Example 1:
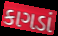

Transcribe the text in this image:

કાગડાં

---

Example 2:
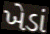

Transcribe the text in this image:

ખેડાં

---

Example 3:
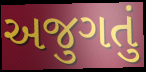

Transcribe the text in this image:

અજુગતું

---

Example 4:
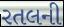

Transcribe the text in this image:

રતલની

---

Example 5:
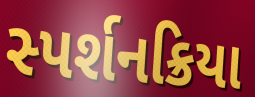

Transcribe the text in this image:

સ્પર્શનક્રિયા